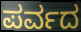
ಪರ್ವದ